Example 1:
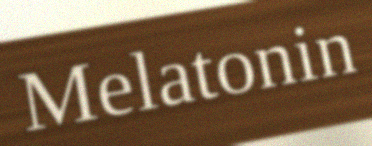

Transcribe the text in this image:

Melatonin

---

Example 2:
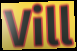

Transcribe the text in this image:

Vill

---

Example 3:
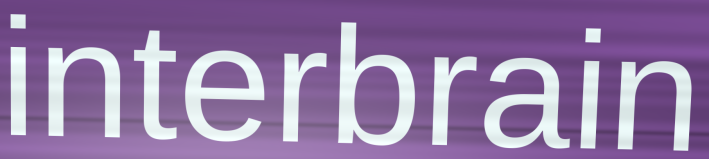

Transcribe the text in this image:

interbrain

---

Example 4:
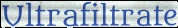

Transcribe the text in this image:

Ultrafiltrate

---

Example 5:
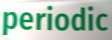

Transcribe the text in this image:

periodic